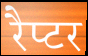
रैप्टर